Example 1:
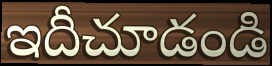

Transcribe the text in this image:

ఇదీచూడండి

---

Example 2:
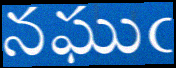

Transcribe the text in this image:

నఘుఁ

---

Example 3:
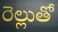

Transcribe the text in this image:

రెల్లుతో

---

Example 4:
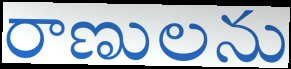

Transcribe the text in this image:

రాణులను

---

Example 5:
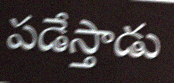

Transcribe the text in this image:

పడేస్తాడు